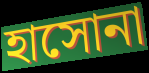
হাসোনা